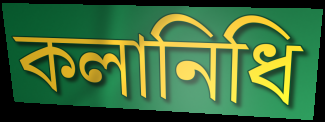
কলানিধি